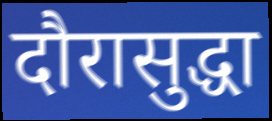
दौरासुद्धा